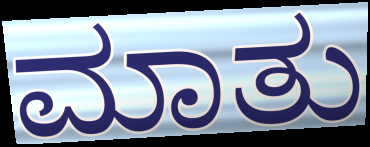
ಮಾತು